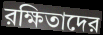
রক্ষিতাদের